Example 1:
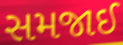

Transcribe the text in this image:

સમજાઈ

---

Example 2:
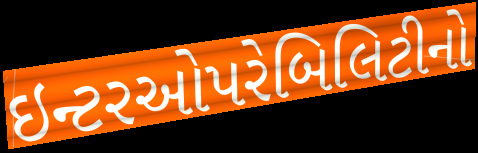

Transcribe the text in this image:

ઇન્ટરઓપરેબિલિટીનો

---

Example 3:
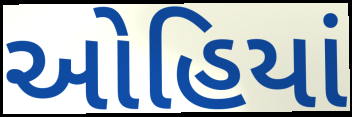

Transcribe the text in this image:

ઓહિયાં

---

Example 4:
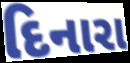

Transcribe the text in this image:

દિનારા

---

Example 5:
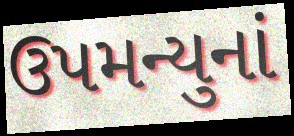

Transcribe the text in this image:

ઉપમન્યુનાં